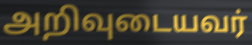
அறிவுடையவர்